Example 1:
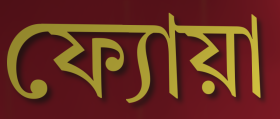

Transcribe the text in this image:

ফ্যোয়া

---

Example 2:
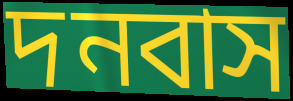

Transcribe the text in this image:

দনবাস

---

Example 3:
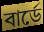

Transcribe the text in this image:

বার্ডে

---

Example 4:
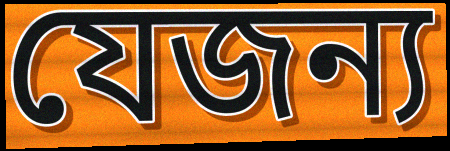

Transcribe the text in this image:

যেজন্য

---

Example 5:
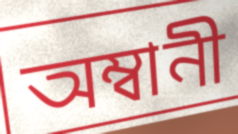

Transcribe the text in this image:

অম্বানী